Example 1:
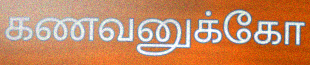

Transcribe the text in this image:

கணவனுக்கோ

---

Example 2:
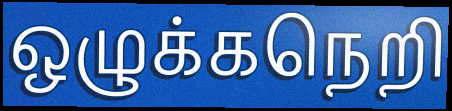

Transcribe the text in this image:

ஒழுக்கநெறி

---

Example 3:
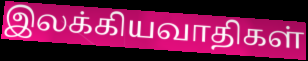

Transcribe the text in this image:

இலக்கியவாதிகள்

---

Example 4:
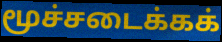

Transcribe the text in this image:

மூச்சடைக்கக்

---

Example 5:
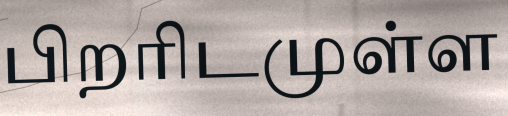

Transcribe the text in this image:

பிறரிடமுள்ள